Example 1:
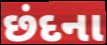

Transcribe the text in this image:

છંદના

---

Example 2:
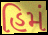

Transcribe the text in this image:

હિમં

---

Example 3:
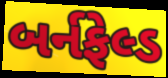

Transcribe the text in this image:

બર્નફેલ્ડ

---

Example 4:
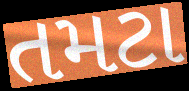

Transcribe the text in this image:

તમટા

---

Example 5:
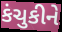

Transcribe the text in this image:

કંચુકીને